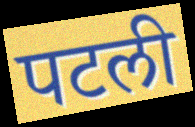
पटली